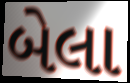
બેલા